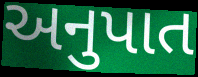
અનુપાત